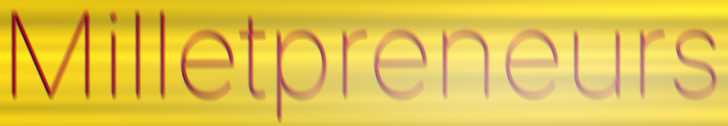
Milletpreneurs